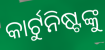
କାର୍ଟୁନିଷ୍ଟଙ୍କୁ